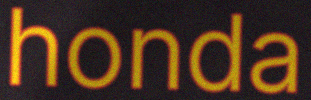
honda